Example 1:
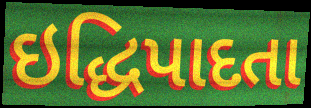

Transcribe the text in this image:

ઇદ્ધિપાદતા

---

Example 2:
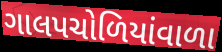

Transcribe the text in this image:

ગાલપચોળિયાંવાળા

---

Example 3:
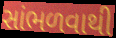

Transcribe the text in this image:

સાંભળવાથી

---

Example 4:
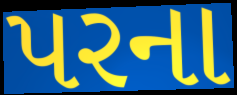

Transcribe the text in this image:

પરના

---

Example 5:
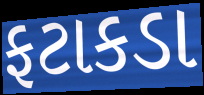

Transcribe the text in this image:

ફટાકડા